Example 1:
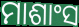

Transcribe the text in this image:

ମାଶାଂସ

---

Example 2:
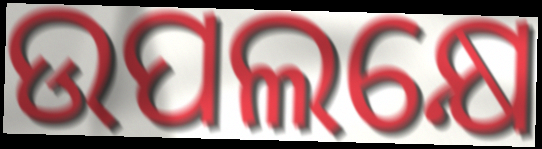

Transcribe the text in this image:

ଉପଲକ୍ଷେ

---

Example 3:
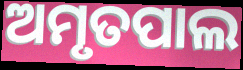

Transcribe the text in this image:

ଅମୃତପାଲ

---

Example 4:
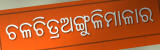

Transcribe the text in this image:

ଚଳଚିତ୍ରଅଙ୍ଗୁଳିମାଳାର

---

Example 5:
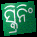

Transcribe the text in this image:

ସ୍କ୍ରିନିଂ